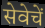
सेवेचें